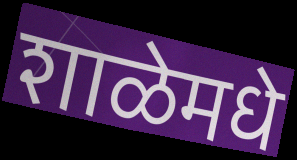
शाळेमधे